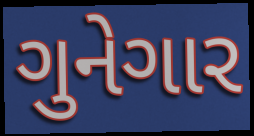
ગુનેગાર